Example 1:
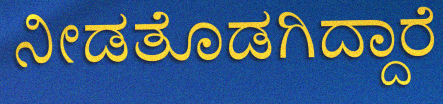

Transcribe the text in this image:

ನೀಡತೊಡಗಿದ್ದಾರೆ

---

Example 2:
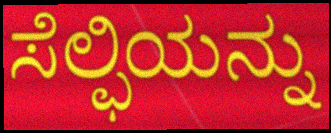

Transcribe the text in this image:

ಸೆಲ್ಫಿಯನ್ನು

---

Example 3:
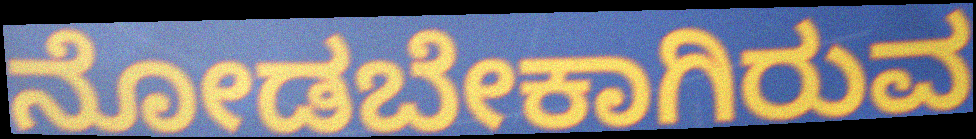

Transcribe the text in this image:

ನೋಡಬೇಕಾಗಿರುವ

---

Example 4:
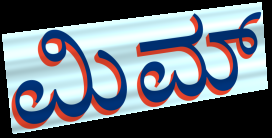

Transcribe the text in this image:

ಮಿಮ್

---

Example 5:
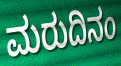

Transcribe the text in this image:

ಮರುದಿನಂ